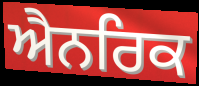
ਐਨਰਿਕ